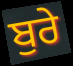
ਬੁਰੇ